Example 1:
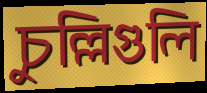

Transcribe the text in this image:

চুল্লিগুলি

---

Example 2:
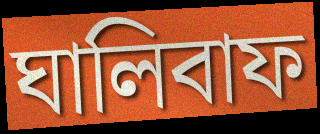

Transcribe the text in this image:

ঘালিবাফ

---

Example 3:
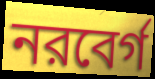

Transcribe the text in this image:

নরবের্গ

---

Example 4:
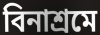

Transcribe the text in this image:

বিনাশ্রমে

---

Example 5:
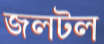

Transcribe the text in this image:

জলটল